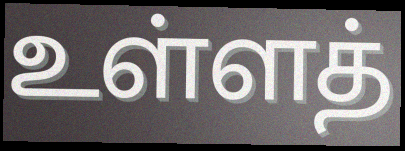
உள்ளத்